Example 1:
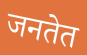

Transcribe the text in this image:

जनतेत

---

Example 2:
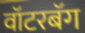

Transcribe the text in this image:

वॉटरबॅग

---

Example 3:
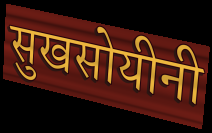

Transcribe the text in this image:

सुखसोयीनी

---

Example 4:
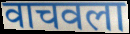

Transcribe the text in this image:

वाचवला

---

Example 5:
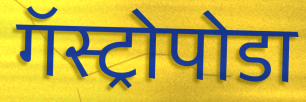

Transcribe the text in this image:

गॅस्ट्रोपोडा